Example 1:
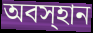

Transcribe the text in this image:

অবস্হান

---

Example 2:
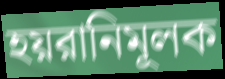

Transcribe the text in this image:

হয়রানিমূলক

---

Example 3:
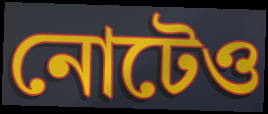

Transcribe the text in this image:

নোটেও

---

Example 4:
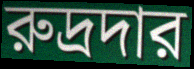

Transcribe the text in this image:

রুদ্রদার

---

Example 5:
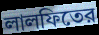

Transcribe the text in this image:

লালফিতের